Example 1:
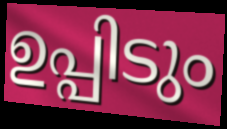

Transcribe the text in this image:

ഉപ്പിടും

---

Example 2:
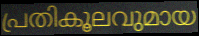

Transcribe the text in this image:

പ്രതികൂലവുമായ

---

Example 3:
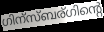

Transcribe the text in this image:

ഗിന്സ്ബര്ഗിന്റെ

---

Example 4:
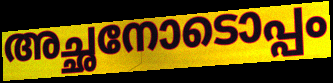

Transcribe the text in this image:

അച്ഛനോടൊപ്പം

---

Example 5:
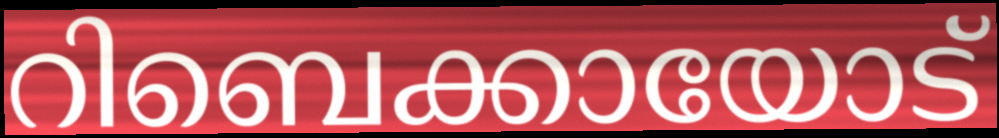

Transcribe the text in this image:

റിബെക്കായോട്